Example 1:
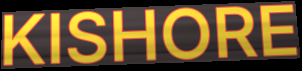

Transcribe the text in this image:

KISHORE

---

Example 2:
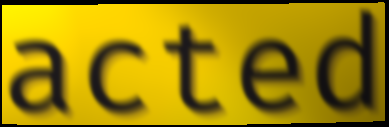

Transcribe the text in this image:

acted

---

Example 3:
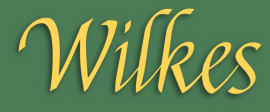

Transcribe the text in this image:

Wilkes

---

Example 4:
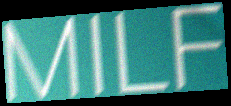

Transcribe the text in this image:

MILF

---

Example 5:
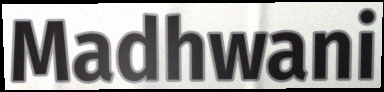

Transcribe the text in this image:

Madhwani